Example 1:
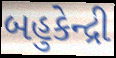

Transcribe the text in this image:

બહુકેન્દ્રી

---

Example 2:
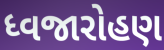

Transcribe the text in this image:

ધ્વજારોહણ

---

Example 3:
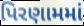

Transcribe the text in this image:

પિરણામમાં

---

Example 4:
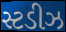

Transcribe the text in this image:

સ્ટડીઝ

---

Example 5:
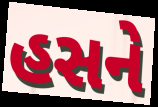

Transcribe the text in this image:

હસને